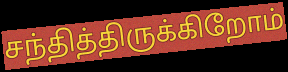
சந்தித்திருக்கிறோம்